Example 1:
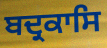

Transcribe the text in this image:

ਬਦ੍ਰਕਾਸਿ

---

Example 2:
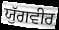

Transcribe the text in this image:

ਯੁੱਗਵੀਰ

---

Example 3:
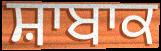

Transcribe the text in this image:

ਸ਼ਾਬਾਕ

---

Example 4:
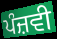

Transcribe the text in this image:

ਪੰਜ਼ਵੀ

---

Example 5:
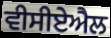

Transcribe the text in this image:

ਵੀਸੀਏਐਲ